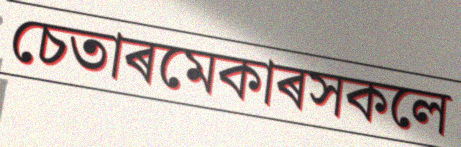
চেতাৰমেকাৰসকলে